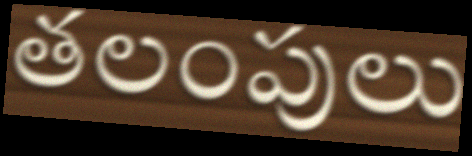
తలంపులు